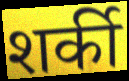
शर्की